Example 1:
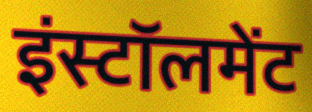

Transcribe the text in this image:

इंस्टॉलमेंट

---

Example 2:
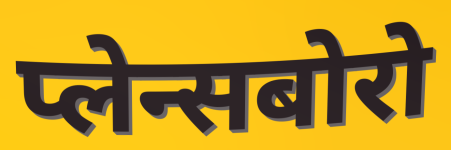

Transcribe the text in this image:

प्लेन्सबोरो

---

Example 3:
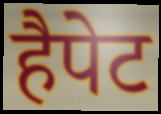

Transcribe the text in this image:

हैपेट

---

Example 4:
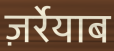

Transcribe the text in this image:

ज़र्रेयाब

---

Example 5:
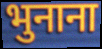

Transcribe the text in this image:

भुनाना